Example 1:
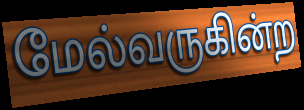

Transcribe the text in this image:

மேல்வருகின்ற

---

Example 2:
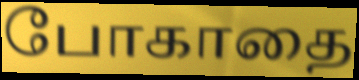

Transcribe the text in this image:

போகாதை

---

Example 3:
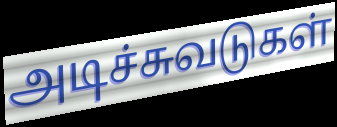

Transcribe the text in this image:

அடிச்சுவடுகள்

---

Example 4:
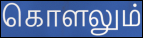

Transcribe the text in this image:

கொளலும்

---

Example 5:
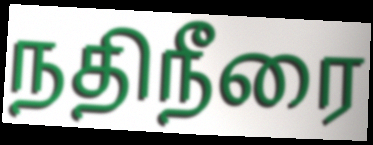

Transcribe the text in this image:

நதிநீரை